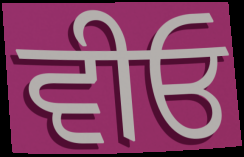
ਵੀਓ